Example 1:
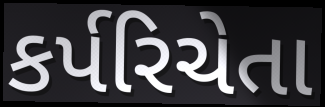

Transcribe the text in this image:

કર્પરિચેતા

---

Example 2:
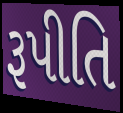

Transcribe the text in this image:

રૂપીતિ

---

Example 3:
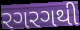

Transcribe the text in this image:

રગરગથી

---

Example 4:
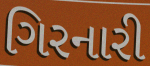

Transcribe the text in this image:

ગિરનારી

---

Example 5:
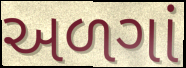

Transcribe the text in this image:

અળગાં